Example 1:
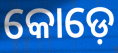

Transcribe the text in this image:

କୋଡ଼େ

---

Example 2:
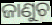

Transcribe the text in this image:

ଜାଣୁଚ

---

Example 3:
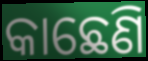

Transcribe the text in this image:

କାଛେଣି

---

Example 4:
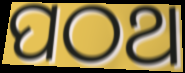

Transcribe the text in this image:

ପଠଥ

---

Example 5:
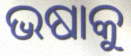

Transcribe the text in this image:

ଭଷାକୁ